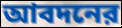
আবদনের